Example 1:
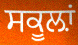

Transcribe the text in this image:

ਸਕੂਲ਼ਾਂ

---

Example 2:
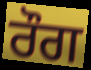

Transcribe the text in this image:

ਰੌਗ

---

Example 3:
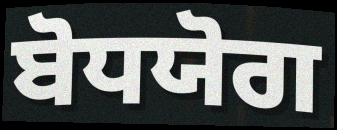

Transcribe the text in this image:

ਬੋਧਯੋਗ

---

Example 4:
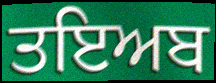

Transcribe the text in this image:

ਤਇਅਬ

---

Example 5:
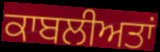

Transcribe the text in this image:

ਕਾਬਲੀਅਤਾਂ